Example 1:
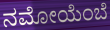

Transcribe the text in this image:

ನಮೋಯೆಂಬೆ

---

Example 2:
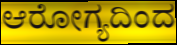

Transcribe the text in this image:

ಆರೋಗ್ಯದಿಂದ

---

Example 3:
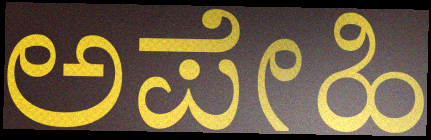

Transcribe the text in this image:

ಅಪೇಹಿ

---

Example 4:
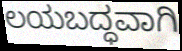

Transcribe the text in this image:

ಲಯಬದ್ಧವಾಗಿ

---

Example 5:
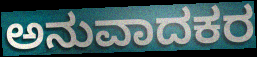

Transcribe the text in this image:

ಅನುವಾದಕರ